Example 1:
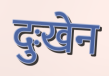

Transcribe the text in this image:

दुःखेन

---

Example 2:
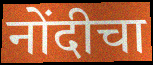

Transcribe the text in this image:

नोंदीचा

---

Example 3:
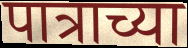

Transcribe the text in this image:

पात्राच्या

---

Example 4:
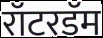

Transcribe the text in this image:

रॉटरडॅम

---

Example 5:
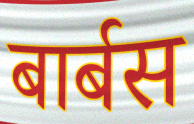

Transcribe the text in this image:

बार्बस